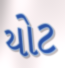
યોટ